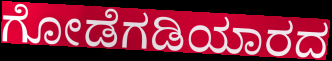
ಗೋಡೆಗಡಿಯಾರದ